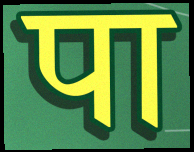
पा